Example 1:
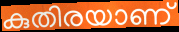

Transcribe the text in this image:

കുതിരയാണ്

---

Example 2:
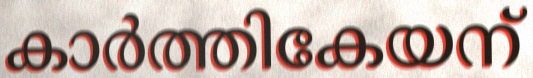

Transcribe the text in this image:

കാർത്തികേയന്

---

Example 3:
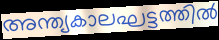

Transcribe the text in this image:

അന്ത്യകാലഘട്ടത്തിൽ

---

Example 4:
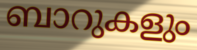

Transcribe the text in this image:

ബാറുകളും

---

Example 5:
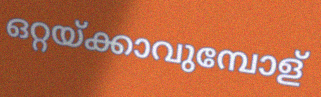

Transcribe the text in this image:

ഒറ്റയ്ക്കാവുമ്പോള്